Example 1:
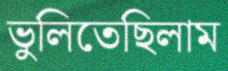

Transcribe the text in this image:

ভুলিতেছিলাম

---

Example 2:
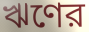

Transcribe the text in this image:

ঋণের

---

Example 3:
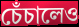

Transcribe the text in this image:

চেঁচালেও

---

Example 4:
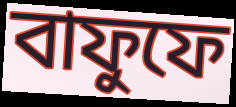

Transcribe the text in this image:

বাফুফে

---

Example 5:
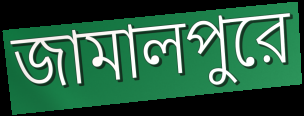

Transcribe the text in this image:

জামালপুরে